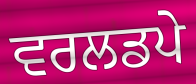
ਵਰਲਡਪੇ